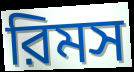
রিমস